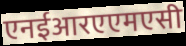
एनईआरएएमएसी